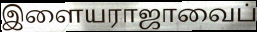
இளையராஜாவைப்